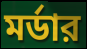
মর্ডার